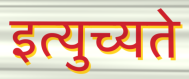
इत्युच्यते